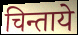
चिन्ताये